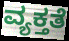
ವ್ಯಕ್ತತೆ